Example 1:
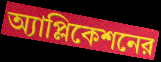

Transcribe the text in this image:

অ্যাপ্লিকেশনের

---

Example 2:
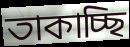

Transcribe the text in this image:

তাকাচ্ছি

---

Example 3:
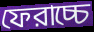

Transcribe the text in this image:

ফেরাচ্চে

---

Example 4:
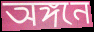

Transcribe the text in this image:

অঙ্গনে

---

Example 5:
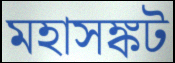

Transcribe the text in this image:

মহাসঙ্কট